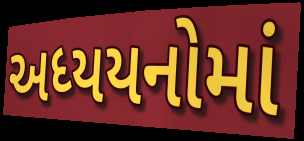
અધ્યયનોમાં